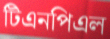
টিএনপিএল